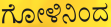
ಗೋಳಿನಿಂದ